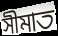
সীমাত